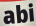
abi